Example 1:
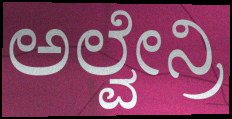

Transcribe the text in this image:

ಅಲ್ವೇನ್ರಿ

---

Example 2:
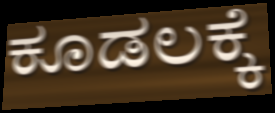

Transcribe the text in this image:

ಕೂಡಲಕ್ಕೆ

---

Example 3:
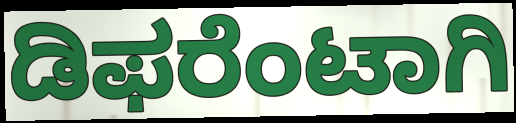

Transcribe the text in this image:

ಡಿಫರೆಂಟಾಗಿ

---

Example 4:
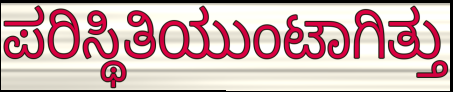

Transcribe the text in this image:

ಪರಿಸ್ಥಿತಿಯುಂಟಾಗಿತ್ತು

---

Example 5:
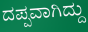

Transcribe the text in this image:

ದಪ್ಪವಾಗಿದ್ದು